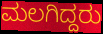
ಮಲಗಿದ್ದರು